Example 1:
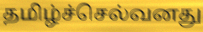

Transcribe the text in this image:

தமிழ்ச்செல்வனது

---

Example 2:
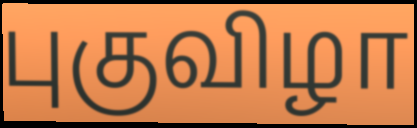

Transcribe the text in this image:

புகுவிழா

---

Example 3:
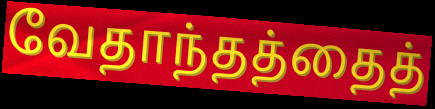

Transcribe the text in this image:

வேதாந்தத்தைத்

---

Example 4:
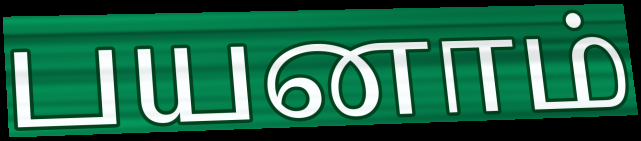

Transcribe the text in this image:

பயனாம்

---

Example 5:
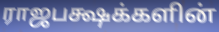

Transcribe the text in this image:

ராஜபக்ஷக்களின்